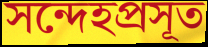
সন্দেহপ্রসূত